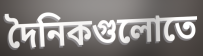
দৈনিকগুলোতে